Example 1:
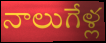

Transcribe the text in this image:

నాలుగేళ్ల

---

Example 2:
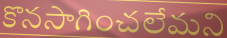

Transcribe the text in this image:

కొనసాగించలేమని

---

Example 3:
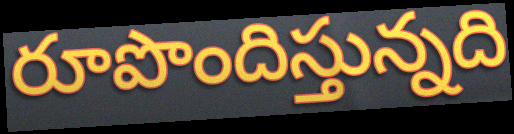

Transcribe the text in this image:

రూపొందిస్తున్నది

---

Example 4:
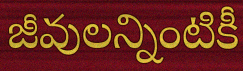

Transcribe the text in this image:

జీవులన్నింటికీ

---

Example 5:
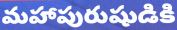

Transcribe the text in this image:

మహాపురుషుడికి